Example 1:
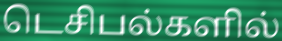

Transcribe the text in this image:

டெசிபல்களில்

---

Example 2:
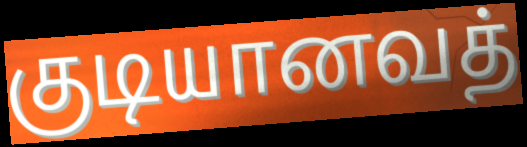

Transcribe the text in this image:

குடியானவத்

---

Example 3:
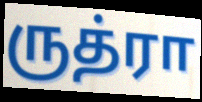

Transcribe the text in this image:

ருத்ரா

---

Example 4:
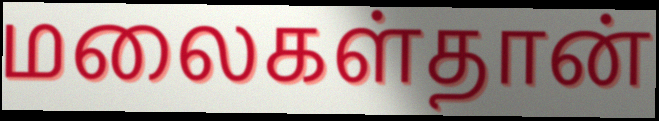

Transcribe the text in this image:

மலைகள்தான்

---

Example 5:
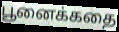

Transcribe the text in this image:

பூனைக்கதை